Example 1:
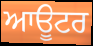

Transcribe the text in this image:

ਆਊਟਰ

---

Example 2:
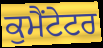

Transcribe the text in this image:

ਕੁਮੈਂਟੇਟਰ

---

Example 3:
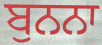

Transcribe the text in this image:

ਬੁਨਨਾ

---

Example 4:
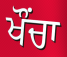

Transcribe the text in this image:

ਖੌੰਚਾ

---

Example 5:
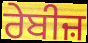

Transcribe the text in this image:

ਰੇਬੀਜ਼